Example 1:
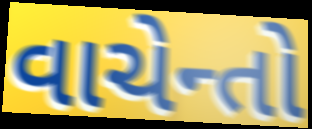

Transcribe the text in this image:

વાચેન્તો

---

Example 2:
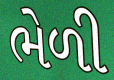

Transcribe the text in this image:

ભેળી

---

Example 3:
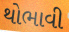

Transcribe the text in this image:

થોભાવી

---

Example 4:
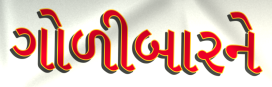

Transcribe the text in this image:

ગોળીબારને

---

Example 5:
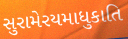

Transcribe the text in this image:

સુરામેરયમાધુકાતિ